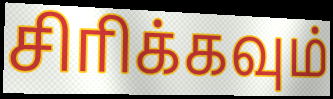
சிரிக்கவும்